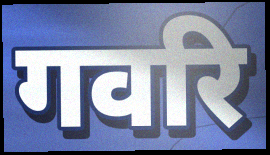
गवरि